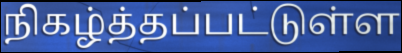
நிகழ்த்தப்பட்டுள்ள